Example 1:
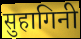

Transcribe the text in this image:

सुहागिनी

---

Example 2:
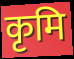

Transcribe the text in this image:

कृमि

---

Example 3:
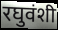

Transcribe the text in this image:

रघुवंशी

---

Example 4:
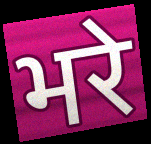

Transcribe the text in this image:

भरे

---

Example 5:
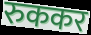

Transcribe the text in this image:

रुककर